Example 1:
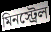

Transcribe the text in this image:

মিনস্ট্রেল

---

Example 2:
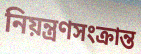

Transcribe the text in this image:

নিয়ন্ত্রণসংক্রান্ত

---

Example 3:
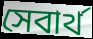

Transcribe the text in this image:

সেবার্থ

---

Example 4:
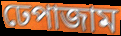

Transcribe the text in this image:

ঢেপাজাম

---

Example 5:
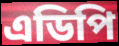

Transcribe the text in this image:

এডিপি